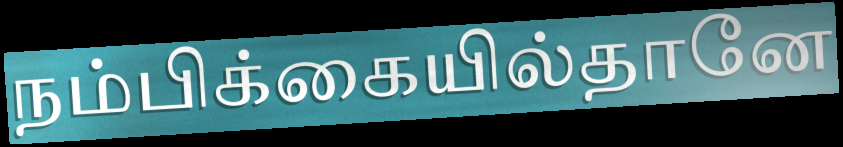
நம்பிக்கையில்தானே